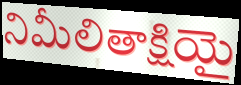
నిమీలితాక్షియై